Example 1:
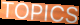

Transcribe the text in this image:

TOPICS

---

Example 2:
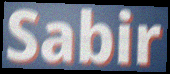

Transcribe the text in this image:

Sabir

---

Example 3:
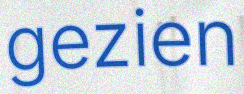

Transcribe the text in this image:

gezien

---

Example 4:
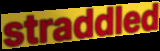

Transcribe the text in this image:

straddled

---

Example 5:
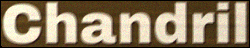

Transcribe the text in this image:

Chandril